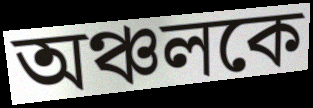
অঞ্চলকে